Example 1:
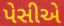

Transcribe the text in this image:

પેસીએ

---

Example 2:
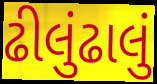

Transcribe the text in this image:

ઢીલુંઢાલું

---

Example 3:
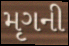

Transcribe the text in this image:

મૃગની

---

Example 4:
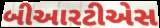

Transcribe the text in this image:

બીઆરટીએસ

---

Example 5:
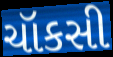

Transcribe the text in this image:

ચૉકસી